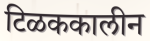
टिळककालीन